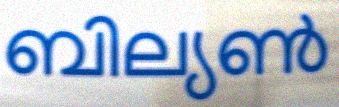
ബില്യൺ